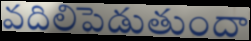
వదిలిపెడుతుందా